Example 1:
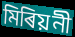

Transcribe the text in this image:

মিৰিয়নী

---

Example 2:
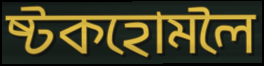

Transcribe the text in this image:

ষ্টকহোমলৈ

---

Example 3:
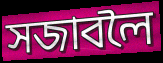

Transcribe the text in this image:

সজাবলৈ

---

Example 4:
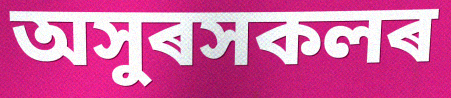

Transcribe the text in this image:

অসুৰসকলৰ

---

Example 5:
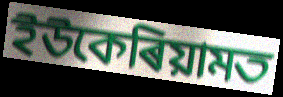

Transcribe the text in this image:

ইউকেৰিয়ামত